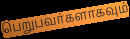
பெறுபவர்களாகவும்